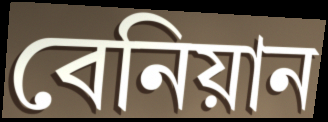
বেনিয়ান